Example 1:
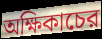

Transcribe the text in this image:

অক্ষিকাচের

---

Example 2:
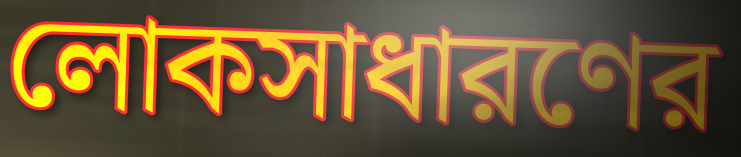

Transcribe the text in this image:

লোকসাধারণের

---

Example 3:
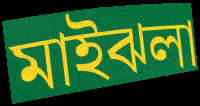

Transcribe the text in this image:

মাইঝলা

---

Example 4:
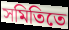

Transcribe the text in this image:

সমিতিতে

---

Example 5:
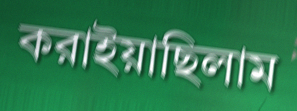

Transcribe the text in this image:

করাইয়াছিলাম